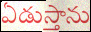
ఏడుస్తాను